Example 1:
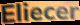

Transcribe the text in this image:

Eliecer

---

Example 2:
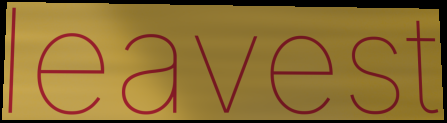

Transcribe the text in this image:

leavest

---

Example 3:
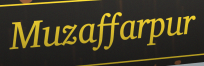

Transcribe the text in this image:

Muzaffarpur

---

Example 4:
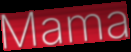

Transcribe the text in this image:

Mama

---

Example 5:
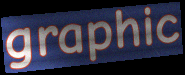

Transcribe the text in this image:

graphic